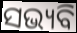
ସଭ୍ୟବି